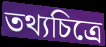
তথ্যচিত্রে